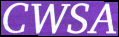
CWSA